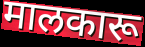
मालकारू